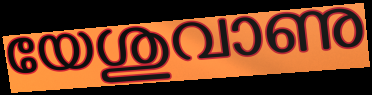
യേശുവാണു